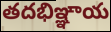
తదభిఞ్ఞాయ